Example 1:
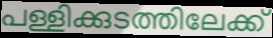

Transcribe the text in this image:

പള്ളിക്കുടത്തിലേക്ക്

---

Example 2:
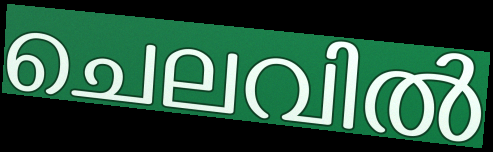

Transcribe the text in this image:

ചെലവിൽ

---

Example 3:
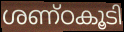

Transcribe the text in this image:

ശണ്ഠകൂടി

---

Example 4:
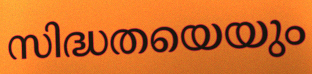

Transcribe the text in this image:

സിദ്ധതയെയും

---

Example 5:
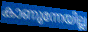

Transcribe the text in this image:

കാണുന്നേയില്ല